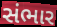
સંભાર